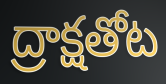
ద్రాక్షతోట